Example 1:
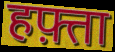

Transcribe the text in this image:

हफ़्ता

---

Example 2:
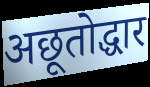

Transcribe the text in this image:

अछूतोद्धार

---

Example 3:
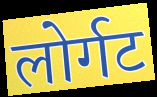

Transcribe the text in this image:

लोर्गट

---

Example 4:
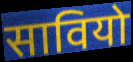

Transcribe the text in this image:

सावियो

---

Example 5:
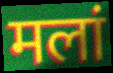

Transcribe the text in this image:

मलां